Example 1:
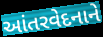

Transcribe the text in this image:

આંતરવેદનાને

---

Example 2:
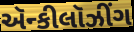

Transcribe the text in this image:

ઍન્કીલૉઝીંગ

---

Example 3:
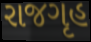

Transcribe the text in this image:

રાજગૃહ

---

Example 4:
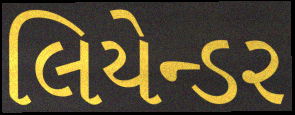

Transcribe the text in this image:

લિયેન્ડર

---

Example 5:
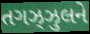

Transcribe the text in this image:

તગઝ્ઝુલને